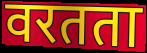
वरतता